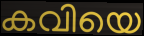
കവിയെ